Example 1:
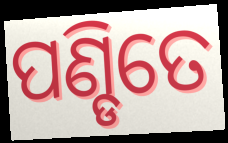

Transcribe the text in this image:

ପଣ୍ଡିତେ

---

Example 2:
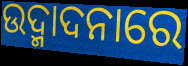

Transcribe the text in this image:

ଉଦ୍ମାଦନାରେ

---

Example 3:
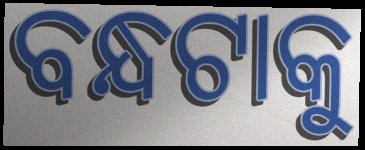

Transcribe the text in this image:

ବନ୍ଧଟାକୁ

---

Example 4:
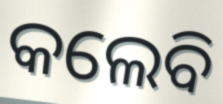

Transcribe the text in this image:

କଲେବି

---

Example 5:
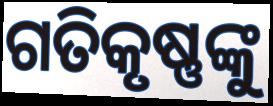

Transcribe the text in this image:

ଗତିକୃଷ୍ଣଙ୍କୁ